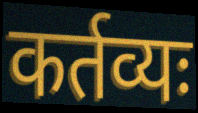
कर्तव्यः